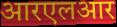
आरएलआर